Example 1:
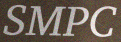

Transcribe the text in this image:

SMPC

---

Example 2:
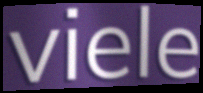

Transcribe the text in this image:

viele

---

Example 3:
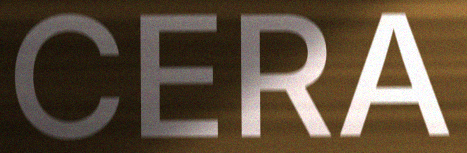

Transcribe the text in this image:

CERA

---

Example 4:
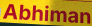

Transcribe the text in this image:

Abhiman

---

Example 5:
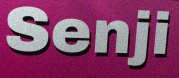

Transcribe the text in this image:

Senji